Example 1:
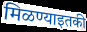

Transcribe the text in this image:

मिळण्याइतकी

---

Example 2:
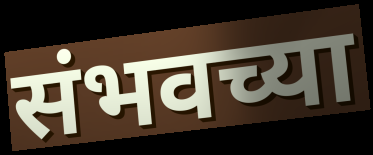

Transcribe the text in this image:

संभवच्या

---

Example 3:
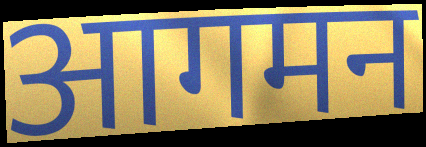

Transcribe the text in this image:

आगमन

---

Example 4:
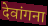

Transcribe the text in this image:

देवांगना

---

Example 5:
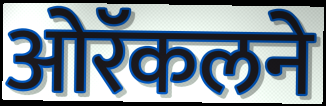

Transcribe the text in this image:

ओरॅकलने